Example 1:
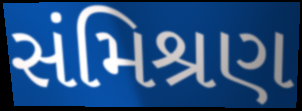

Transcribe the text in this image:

સંમિશ્રણ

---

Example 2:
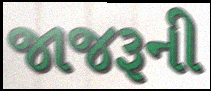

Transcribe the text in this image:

જાજરૂની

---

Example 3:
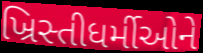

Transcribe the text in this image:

ખ્રિસ્તીધર્મીઓને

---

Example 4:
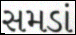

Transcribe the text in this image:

સમડાં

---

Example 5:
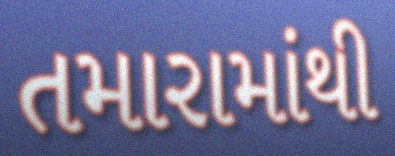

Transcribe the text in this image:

તમારામાંથી